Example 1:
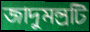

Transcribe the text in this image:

জাদুমন্ত্রটি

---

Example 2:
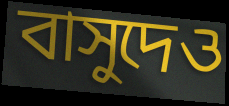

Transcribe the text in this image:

বাসুদেও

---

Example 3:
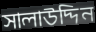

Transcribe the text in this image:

সালাউদ্দিন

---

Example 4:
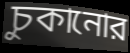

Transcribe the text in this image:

চুকানোর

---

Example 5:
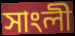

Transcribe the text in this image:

সাংলী